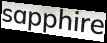
sapphire